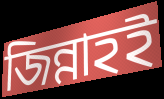
জিন্নাহই